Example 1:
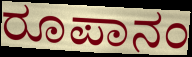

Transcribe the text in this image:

ರೂಪಾನಂ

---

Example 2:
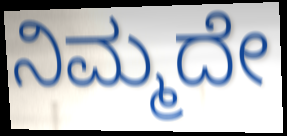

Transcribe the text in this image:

ನಿಮ್ಮದೇ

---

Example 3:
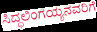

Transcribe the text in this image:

ಸಿದ್ಧಲಿಂಗಯ್ಯನವರಿಗೆ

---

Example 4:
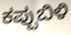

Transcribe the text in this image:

ಕಪ್ಪುಬಿಳಿ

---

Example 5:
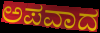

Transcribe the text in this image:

ಅಪವಾದ